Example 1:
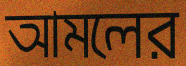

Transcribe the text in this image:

আমলের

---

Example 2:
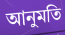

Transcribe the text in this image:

আনুমতি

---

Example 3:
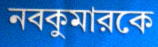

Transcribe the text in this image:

নবকুমারকে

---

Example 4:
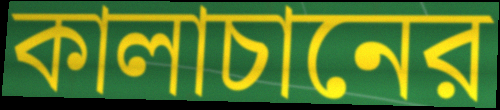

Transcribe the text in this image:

কালাচানের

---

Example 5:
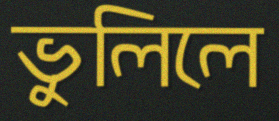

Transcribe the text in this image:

ভুলিলে